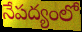
నేపద్యంలో